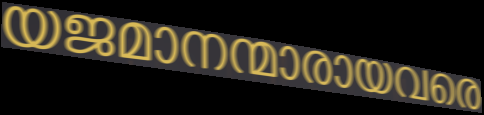
യജമാനന്മാരായവരെ